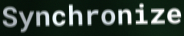
Synchronize